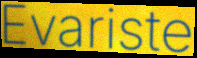
Evariste